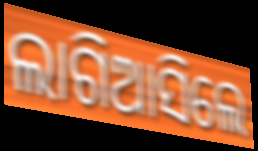
ଲାଗିଆସିଲେ